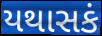
યથાસકં